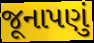
જૂનાપણું